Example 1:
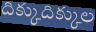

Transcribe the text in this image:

దిక్కుదిక్కుల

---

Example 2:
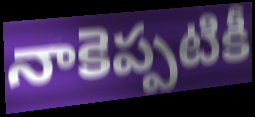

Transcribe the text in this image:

నాకెప్పటికీ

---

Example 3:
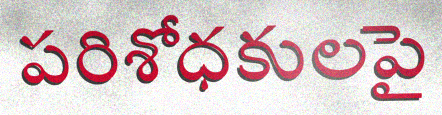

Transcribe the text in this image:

పరిశోధకులపై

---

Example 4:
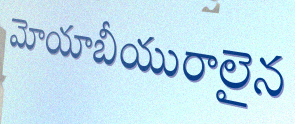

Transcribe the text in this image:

మోయాబీయురాలైన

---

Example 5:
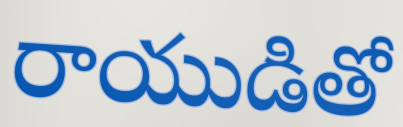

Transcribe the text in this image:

రాయుడితో